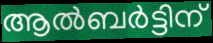
ആൽബർട്ടിന്